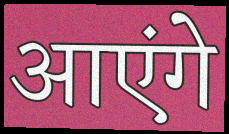
आएंगे